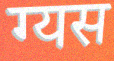
ग्यस